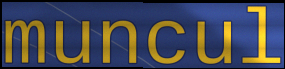
muncul